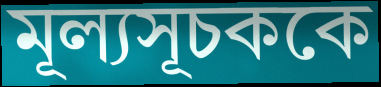
মূল্যসূচককে